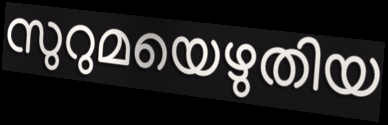
സുറുമയെഴുതിയ